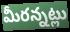
మీరన్నట్లు